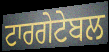
ਟਾਰਗੇਟੇਬਲ